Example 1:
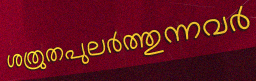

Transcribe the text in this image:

ശത്രുതപുലർത്തുന്നവർ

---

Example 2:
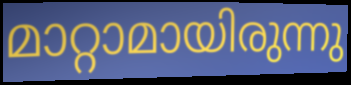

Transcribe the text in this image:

മാറ്റാമായിരുന്നു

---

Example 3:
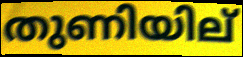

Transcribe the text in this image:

തുണിയില്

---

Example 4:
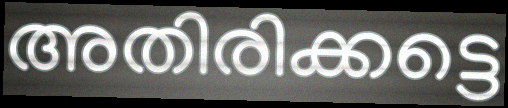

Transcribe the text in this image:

അതിരിക്കട്ടെ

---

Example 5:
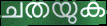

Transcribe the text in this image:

ചതയുക